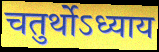
चतुर्थोऽध्याय